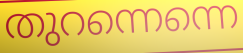
തുറന്നെന്നെ